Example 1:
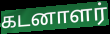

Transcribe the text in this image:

கடனாளர்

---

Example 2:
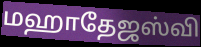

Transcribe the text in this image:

மஹாதேஜஸ்வி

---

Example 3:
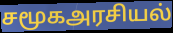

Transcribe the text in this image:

சமூகஅரசியல்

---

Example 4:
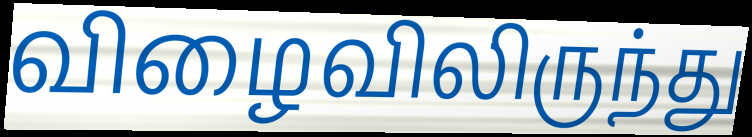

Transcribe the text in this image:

விழைவிலிருந்து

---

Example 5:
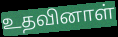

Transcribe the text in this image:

உதவினாள்